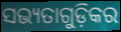
ସଭ୍ୟତାଗୁଡ଼ିକର